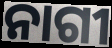
ନାଗୀ